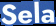
Sela